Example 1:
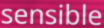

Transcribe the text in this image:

sensible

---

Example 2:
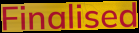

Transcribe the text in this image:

Finalised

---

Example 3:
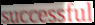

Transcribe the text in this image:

successful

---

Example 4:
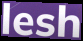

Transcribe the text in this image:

lesh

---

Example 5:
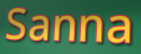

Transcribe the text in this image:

Sanna